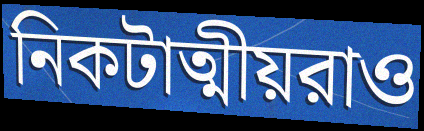
নিকটাত্মীয়রাও